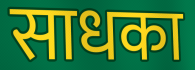
साधका